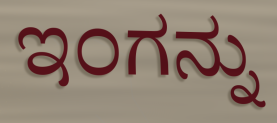
ಇಂಗನ್ನು